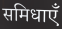
समिधाएँ